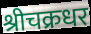
श्रीचक्रधर